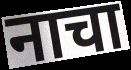
नाचा